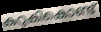
കുറുകികൊണ്ട്